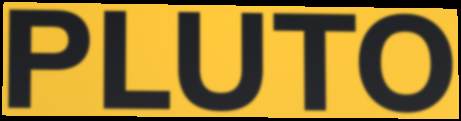
PLUTO